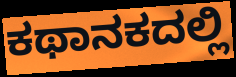
ಕಥಾನಕದಲ್ಲಿ